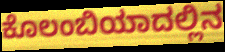
ಕೊಲಂಬಿಯಾದಲ್ಲಿನ